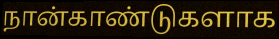
நான்காண்டுகளாக